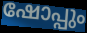
ഷോപ്പും